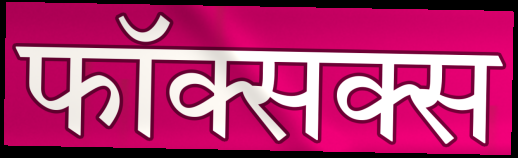
फॉक्सक्स